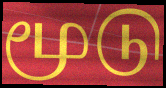
மூடு